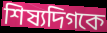
শিষ্যদিগকে